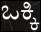
ಒಕ್ಕಿ